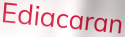
Ediacaran